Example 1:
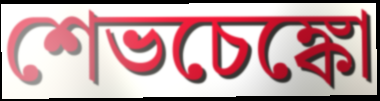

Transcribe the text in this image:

শেভচেঙ্কো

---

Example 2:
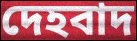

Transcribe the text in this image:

দেহবাদ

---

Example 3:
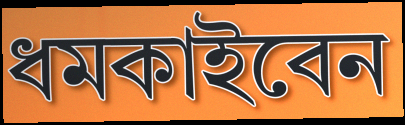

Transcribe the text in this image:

ধমকাইবেন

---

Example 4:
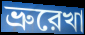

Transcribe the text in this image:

ভ্রুরেখা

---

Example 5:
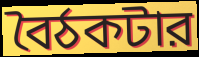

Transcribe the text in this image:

বৈঠকটার